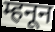
म्हनून